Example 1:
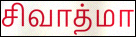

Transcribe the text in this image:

சிவாத்மா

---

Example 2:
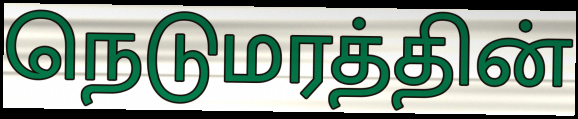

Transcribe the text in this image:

நெடுமரத்தின்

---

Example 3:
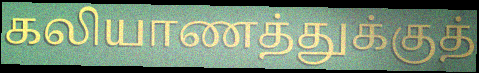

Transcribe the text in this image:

கலியாணத்துக்குத்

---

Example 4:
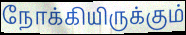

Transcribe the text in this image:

நோக்கியிருக்கும்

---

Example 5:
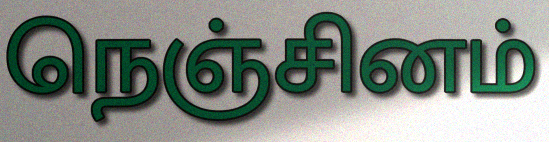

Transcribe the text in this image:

நெஞ்சினம்